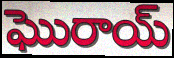
ఘొరాయ్